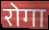
रोगा